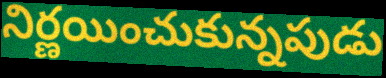
నిర్ణయించుకున్నపుడు